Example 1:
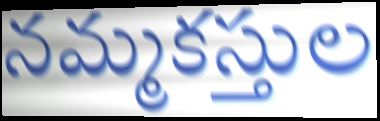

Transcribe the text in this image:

నమ్మకస్తుల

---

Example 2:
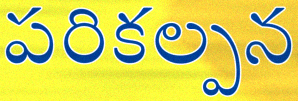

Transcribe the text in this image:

పరికల్పన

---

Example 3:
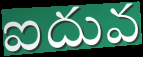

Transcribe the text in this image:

ఐదువ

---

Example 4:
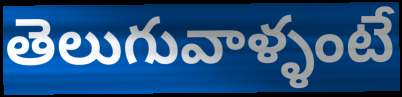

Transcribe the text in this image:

తెలుగువాళ్ళంటే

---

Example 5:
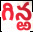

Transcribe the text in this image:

గిన్ఱ